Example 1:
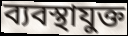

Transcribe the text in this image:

ব্যবস্থাযুক্ত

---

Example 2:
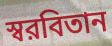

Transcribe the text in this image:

স্বরবিতান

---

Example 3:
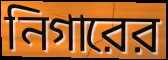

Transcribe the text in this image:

নিগারের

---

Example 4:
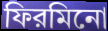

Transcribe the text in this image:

ফিরমিনো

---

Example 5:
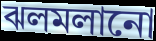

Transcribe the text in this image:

ঝলমলানো